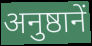
अनुष्ठानें